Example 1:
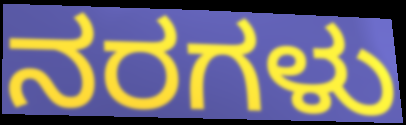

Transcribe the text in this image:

ನರಗಳು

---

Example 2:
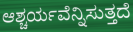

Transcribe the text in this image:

ಆಶ್ಚರ್ಯವೆನ್ನಿಸುತ್ತದೆ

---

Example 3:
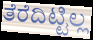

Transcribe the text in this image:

ತೆರೆದಿಟ್ಟಿಲ್ಲ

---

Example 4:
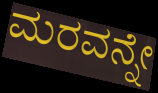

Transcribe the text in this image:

ಮರವನ್ನೇ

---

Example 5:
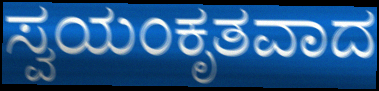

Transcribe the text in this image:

ಸ್ವಯಂಕೃತವಾದ